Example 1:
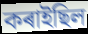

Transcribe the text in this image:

কৰাইছিল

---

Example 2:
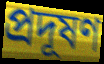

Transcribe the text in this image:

প্ৰদূষণ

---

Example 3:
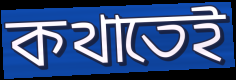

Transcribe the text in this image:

কথাতেই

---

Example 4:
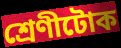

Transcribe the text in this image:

শ্ৰেণীটোক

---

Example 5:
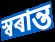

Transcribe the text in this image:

স্বৰান্ত